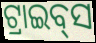
ଟ୍ରାଇବ୍‌ସ